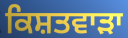
ਕਿਸ਼ਤਵਾੜਾ